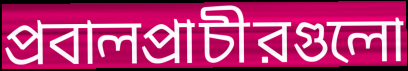
প্রবালপ্রাচীরগুলো